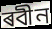
ৰবীন